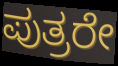
ಪುತ್ರರೇ